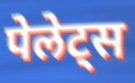
पेलेट्स